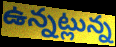
ఉన్నట్లున్న